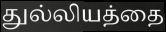
துல்லியத்தை